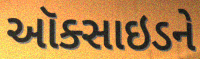
ઑક્સાઇડને